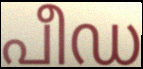
പീഡ